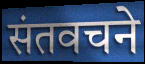
संतवचने